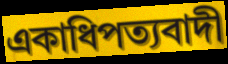
একাধিপত্যবাদী